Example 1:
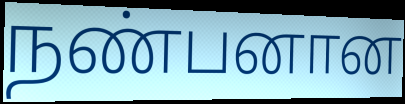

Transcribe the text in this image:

நண்பனான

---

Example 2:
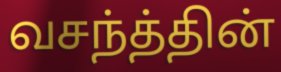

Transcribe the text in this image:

வசந்த்தின்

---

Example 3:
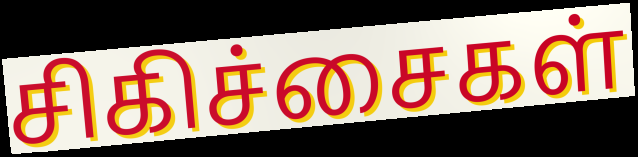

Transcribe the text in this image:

சிகிச்சைகள்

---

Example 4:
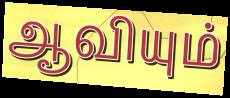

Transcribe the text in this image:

ஆவியும்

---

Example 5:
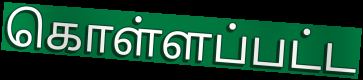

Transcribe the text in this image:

கொள்ளப்பட்ட